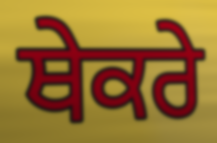
ਥੇਕਰੇ